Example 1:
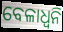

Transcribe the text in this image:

ବେଳାଧ୍ୱନି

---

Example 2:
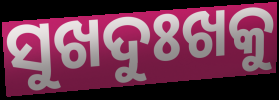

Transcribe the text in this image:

ସୁଖଦୁଃଖକୁ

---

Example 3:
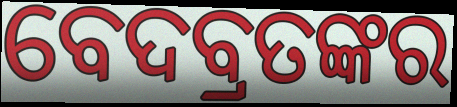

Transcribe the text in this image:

ବେଦବ୍ରତଙ୍କର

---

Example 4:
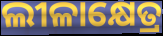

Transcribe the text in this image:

ଲୀଳାକ୍ଷେତ୍ର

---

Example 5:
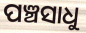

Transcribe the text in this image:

ପଞ୍ଚସାଧୁ